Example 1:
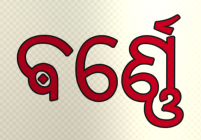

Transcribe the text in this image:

ଵର୍ଣ୍ଣେ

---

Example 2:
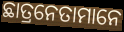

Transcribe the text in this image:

ଛାତ୍ରନେତାମାନେ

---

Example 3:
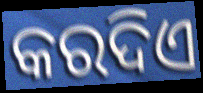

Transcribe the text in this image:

କରଦିଏ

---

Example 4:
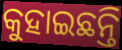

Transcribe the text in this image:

କୁହାଇଛନ୍ତି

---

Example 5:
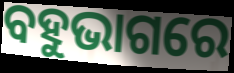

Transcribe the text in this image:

ବହୁଭାଗରେ